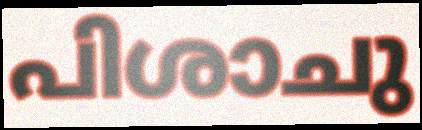
പിശാചു